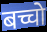
बच्चो